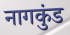
नागकुंड